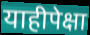
याहीपेक्षा